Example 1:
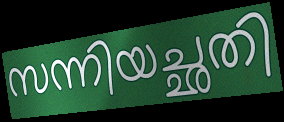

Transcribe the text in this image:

സന്നിയച്ഛതി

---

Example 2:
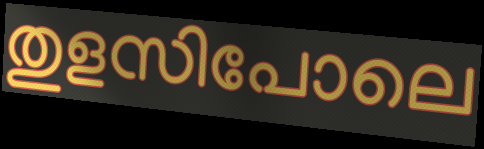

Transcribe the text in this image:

തുളസിപോലെ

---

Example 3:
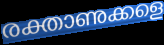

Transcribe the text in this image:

രക്താണുക്കളെ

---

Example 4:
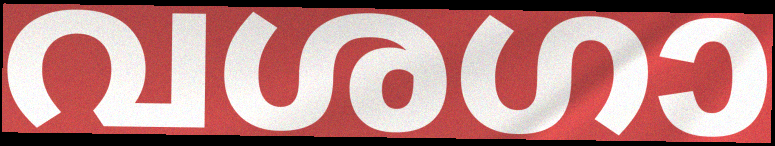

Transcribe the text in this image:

വശഗാ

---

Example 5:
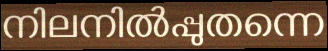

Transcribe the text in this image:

നിലനിൽപ്പുതന്നെ